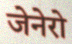
जेनेरो